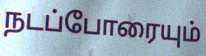
நடப்போரையும்